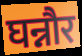
घन्नौर